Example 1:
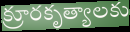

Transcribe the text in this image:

క్రూరకృత్యాలకు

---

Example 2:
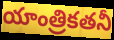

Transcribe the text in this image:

యాంత్రికతనీ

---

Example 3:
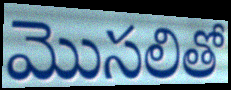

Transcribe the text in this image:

మొసలితో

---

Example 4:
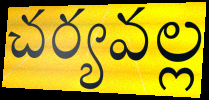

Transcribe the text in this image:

చర్యవల్ల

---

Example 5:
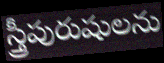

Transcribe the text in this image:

స్త్రీపురుషులను